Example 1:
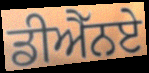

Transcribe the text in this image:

ਡੀਐੱਨਏ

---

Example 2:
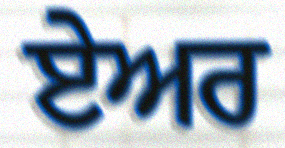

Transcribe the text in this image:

ਏਅਰ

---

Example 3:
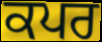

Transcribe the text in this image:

ਕਪਰ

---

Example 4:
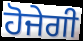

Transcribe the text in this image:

ਹੋਜੇਗੀ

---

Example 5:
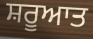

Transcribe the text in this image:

ਸ਼ਰੂਆਤ